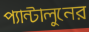
প্যান্টালুনের